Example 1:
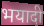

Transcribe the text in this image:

भयादी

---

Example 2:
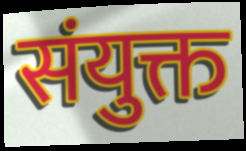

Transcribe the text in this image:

संयुक्त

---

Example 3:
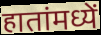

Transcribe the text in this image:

हातांमध्यें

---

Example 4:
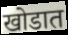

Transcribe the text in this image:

खोडात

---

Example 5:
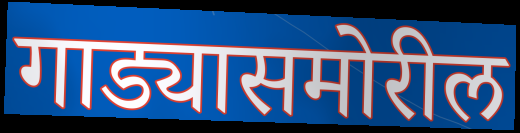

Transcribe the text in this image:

गाड्यासमोरील